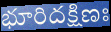
భూరిదక్షిణః